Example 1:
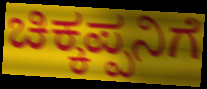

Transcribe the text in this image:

ಚಿಕ್ಕಪ್ಪನಿಗೆ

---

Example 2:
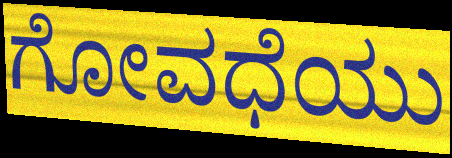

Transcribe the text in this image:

ಗೋವಧೆಯು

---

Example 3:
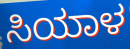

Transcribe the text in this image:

ಸಿಯಾಳ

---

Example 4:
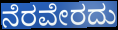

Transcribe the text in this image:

ನೆರವೇರದು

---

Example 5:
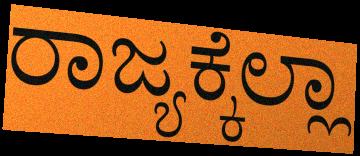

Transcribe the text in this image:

ರಾಜ್ಯಕ್ಕೆಲ್ಲಾ